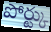
పోర్ట్కు